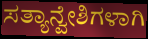
ಸತ್ಯಾನ್ವೇಶಿಗಳಾಗಿ